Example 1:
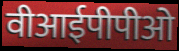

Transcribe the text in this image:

वीआईपीपीओ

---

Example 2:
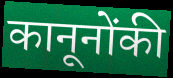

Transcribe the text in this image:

कानूनोंकी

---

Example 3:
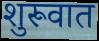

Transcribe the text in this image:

शुरूवात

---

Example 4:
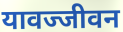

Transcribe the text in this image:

यावज्जीवन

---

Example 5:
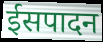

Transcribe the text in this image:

ईसपादन